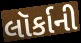
લૉર્કાની